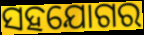
ସହଯୋଗର